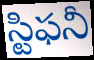
స్టిఫనీ